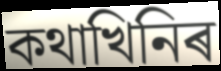
কথাখিনিৰ